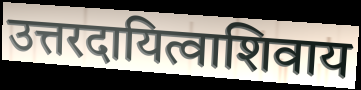
उत्तरदायित्वाशिवाय